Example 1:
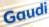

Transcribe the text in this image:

Gaudi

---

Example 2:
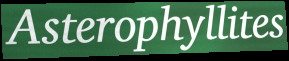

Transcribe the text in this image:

Asterophyllites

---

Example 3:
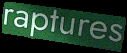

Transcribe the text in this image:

raptures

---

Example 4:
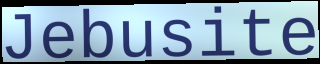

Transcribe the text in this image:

Jebusite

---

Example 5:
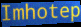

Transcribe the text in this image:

Imhotep